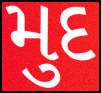
મુદ